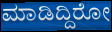
ಮಾಡಿದ್ದಿರೋ